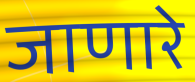
जाणारे